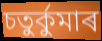
চতুৰ্কুমাৰ